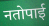
नतोपाई